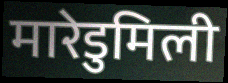
मारेडुमिली